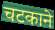
चटकाने